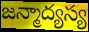
జన్మాద్యస్య